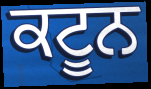
ਕਟੂਨ